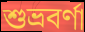
শুভ্রবর্ণা